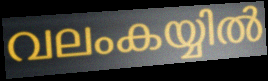
വലംകയ്യിൽ